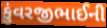
કુંવરજીભાઈની